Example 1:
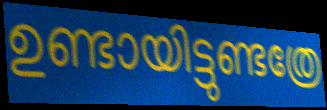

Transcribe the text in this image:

ഉണ്ടായിട്ടുണ്ടത്രേ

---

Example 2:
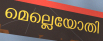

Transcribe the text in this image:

മെല്ലെയോതി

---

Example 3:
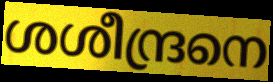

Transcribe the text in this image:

ശശീന്ദ്രനെ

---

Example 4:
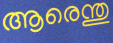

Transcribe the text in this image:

ആരെന്തു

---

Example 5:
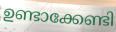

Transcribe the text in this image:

ഉണ്ടാക്കേണ്ടി